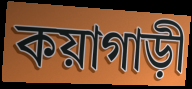
কয়াগাড়ী